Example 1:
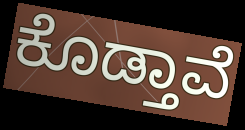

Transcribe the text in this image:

ಕೊಡ್ತಾವೆ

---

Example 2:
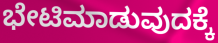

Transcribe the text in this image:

ಭೇಟಿಮಾಡುವುದಕ್ಕೆ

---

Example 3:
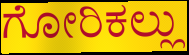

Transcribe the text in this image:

ಗೋರಿಕಲ್ಲು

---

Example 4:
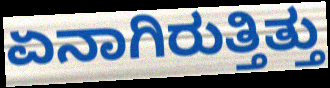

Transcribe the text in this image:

ಏನಾಗಿರುತ್ತಿತ್ತು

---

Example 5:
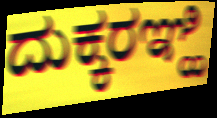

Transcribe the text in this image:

ದುಕ್ಕರಞ್ಹಿ